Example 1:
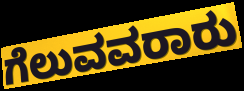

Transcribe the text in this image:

ಗೆಲುವವರಾರು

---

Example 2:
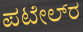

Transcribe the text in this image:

ಪಟೇಲ್‌ರ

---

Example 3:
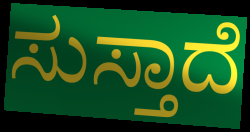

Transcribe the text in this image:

ಸುಸ್ತಾದೆ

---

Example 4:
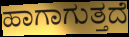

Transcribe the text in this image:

ಹಾಗಾಗುತ್ತದೆ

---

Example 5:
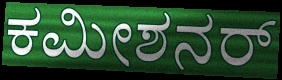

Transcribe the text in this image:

ಕಮೀಶನರ್